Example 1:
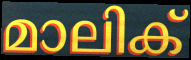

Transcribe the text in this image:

മാലിക്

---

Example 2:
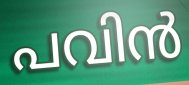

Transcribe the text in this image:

പവിൻ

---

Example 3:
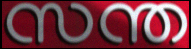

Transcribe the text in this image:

സന്ത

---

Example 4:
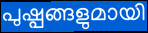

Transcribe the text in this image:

പുഷ്പങ്ങളുമായി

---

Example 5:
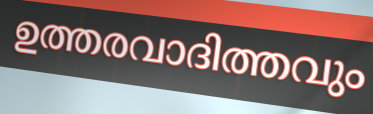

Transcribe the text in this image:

ഉത്തരവാദിത്തവും